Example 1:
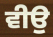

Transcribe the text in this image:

ਵੀਉ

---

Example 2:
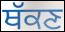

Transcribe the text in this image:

ਥੱਕਣ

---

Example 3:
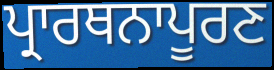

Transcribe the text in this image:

ਪ੍ਰਾਰਥਨਾਪੂਰਣ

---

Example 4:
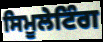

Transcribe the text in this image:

ਸਿਮੂਲੇਟਿੰਗ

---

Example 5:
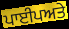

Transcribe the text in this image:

ਪਾਈਪਅਤੇ